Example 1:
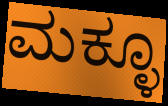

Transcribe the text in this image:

ಮಕ್ಳೂ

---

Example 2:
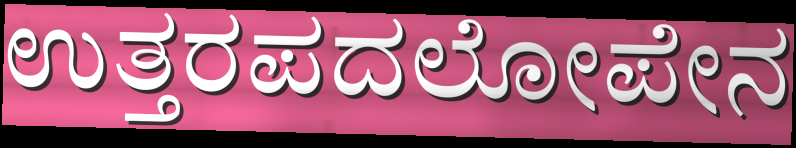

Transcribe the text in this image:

ಉತ್ತರಪದಲೋಪೇನ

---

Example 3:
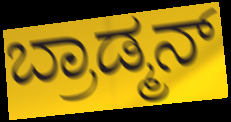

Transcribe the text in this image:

ಬ್ರಾಡ್ಮನ್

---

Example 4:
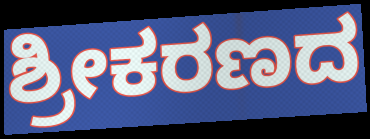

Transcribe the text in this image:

ಶ್ರೀಕರಣದ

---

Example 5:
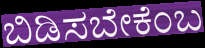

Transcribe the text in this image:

ಬಿಡಿಸಬೇಕೆಂಬ